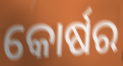
କୋର୍ଷର